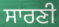
ਸਾਰਣੀ